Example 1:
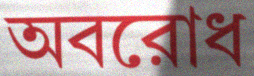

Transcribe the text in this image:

অবরোধ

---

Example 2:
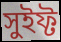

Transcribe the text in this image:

সুইফ্ট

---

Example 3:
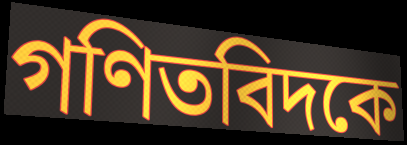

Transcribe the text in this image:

গণিতবিদকে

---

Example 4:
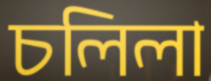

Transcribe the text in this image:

চলিলা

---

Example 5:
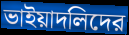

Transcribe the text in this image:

ভাইয়াদলিদের